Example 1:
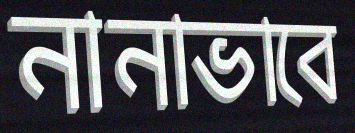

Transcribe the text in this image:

নানাভাবে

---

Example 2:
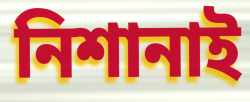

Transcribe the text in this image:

নিশানাই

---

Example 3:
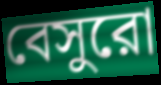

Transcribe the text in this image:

বেসুরো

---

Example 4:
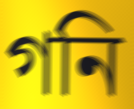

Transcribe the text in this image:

গনি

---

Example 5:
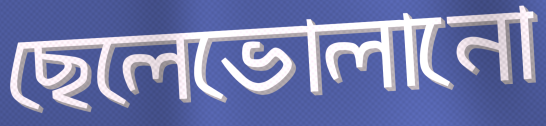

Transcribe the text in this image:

ছেলেভোলানো